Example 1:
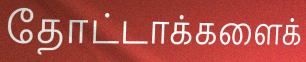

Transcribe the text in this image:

தோட்டாக்களைக்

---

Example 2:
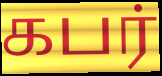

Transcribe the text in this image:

கபர்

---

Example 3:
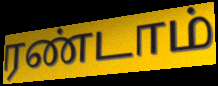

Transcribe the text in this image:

ரண்டாம்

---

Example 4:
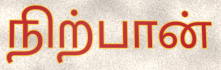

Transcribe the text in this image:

நிற்பான்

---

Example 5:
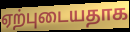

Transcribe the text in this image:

ஏற்புடையதாக